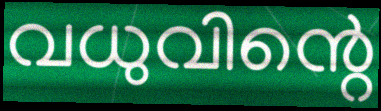
വധുവിന്റെ